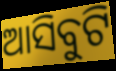
ଆସିବୁଟି